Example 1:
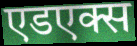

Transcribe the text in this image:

एडएक्स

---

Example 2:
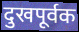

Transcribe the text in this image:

दुखपूर्वक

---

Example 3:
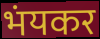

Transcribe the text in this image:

भंयकर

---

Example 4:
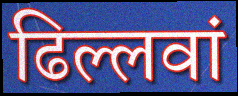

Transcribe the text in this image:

ढिल्लवां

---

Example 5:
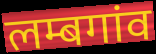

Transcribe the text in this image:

लम्बगांव